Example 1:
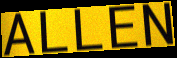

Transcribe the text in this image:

ALLEN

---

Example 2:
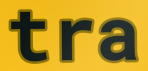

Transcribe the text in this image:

tra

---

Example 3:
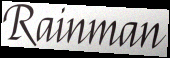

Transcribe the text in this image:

Rainman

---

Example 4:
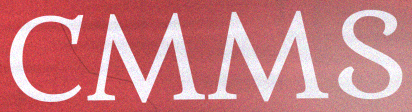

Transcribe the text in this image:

CMMS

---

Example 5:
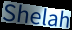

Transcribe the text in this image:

Shelah